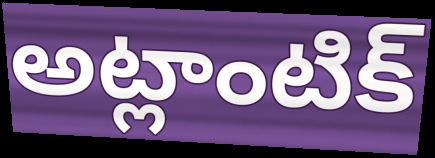
అట్లాంటిక్